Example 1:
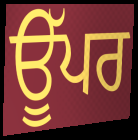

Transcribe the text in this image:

ਊੱਪਰ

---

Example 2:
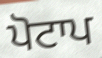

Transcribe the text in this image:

ਪੋਟਾਪ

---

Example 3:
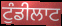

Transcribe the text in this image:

ਟੁੰਡੀਲਾਟ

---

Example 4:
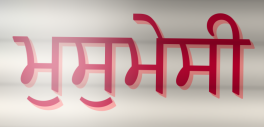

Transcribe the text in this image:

ਮੁਸੁਮੇਸੀ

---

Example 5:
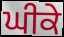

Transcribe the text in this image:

ਘੀਕੇ